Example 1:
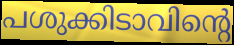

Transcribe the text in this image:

പശുക്കിടാവിന്റെ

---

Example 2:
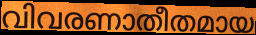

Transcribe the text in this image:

വിവരണാതീതമായ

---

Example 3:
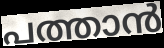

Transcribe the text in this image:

പത്താൻ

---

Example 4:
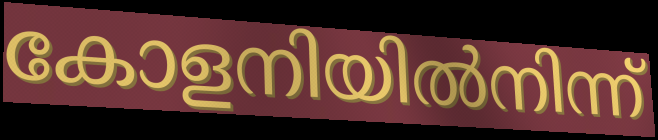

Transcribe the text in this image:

കോളനിയിൽനിന്ന്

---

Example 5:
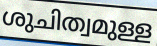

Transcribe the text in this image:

ശുചിത്വമുള്ള